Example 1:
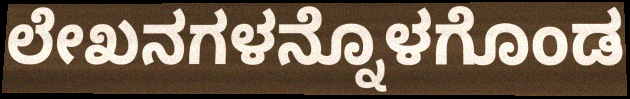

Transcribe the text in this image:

ಲೇಖನಗಳನ್ನೊಳಗೊಂಡ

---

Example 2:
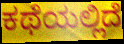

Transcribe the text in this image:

ಕಥೆಯಲ್ಲಿದೆ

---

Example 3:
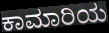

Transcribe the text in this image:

ಕಾಮಾರಿಯ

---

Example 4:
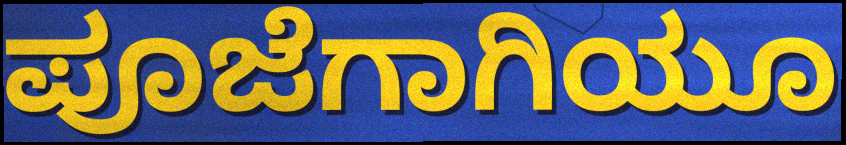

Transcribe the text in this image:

ಪೂಜೆಗಾಗಿಯೂ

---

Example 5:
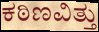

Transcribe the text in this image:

ಕಠಿಣವಿತ್ತು